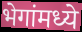
भेगांमध्ये